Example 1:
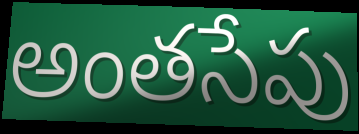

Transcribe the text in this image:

అంతసేపు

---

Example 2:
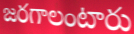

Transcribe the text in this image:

జరగాలంటారు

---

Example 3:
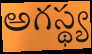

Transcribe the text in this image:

అగస్థ్య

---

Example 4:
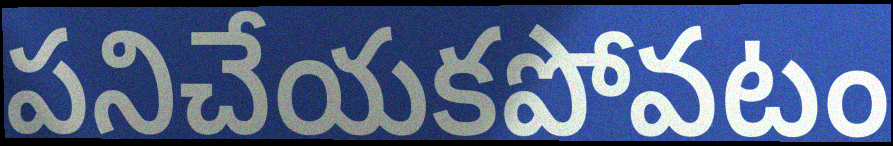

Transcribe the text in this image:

పనిచేయకపోవటం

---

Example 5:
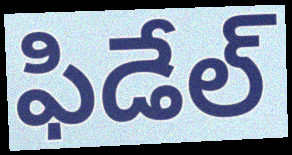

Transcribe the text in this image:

ఫిడేల్